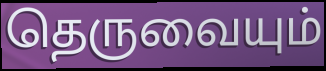
தெருவையும்